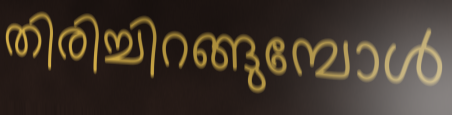
തിരിച്ചിറങ്ങുമ്പോൾ